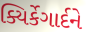
ક્યિર્કેગાર્દને